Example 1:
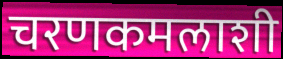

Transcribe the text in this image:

चरणकमलाशी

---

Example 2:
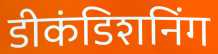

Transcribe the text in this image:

डीकंडिशनिंग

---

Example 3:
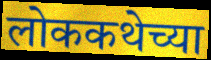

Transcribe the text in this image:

लोककथेच्या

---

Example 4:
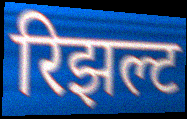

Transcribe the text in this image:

रिझल्ट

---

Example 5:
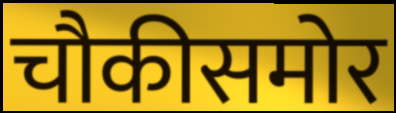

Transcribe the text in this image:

चौकीसमोर